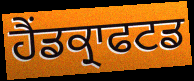
ਹੈਂਡਕ੍ਰਾਫਟਡ